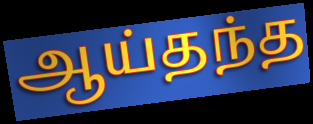
ஆய்தந்த